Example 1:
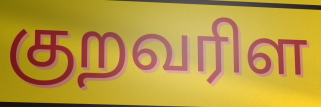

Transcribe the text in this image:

குறவரிள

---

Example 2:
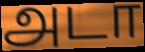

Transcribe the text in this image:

அடா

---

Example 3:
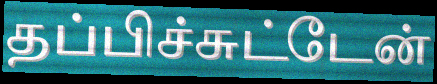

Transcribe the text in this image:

தப்பிச்சுட்டேன்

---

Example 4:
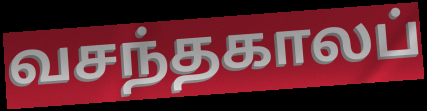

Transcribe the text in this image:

வசந்தகாலப்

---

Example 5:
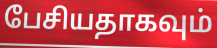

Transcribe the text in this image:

பேசியதாகவும்